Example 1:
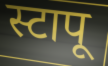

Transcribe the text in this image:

स्टापू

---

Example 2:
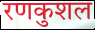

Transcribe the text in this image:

रणकुशल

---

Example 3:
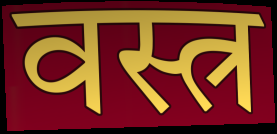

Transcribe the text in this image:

वस्त्र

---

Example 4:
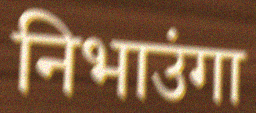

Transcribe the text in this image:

निभाउंगा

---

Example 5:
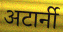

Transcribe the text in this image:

अटार्नी